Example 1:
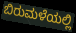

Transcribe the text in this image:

ಬಿರುಮಳೆಯಲ್ಲಿ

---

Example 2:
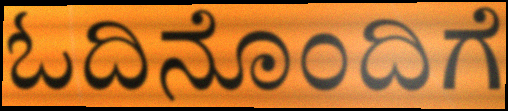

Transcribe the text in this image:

ಓದಿನೊಂದಿಗೆ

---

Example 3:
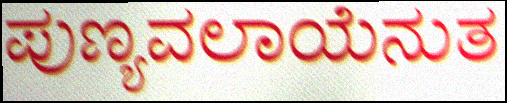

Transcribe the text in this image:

ಪುಣ್ಯವಲಾಯೆನುತ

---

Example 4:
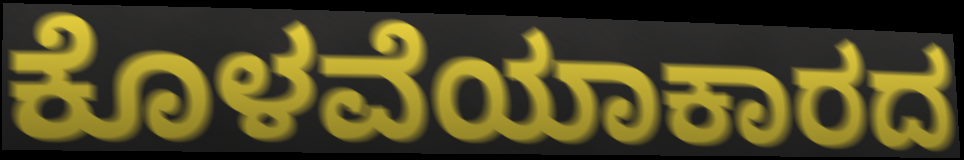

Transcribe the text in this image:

ಕೊಳವೆಯಾಕಾರದ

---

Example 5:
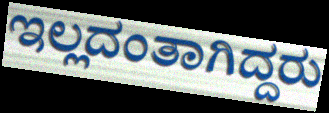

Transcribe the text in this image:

ಇಲ್ಲದಂತಾಗಿದ್ದರು